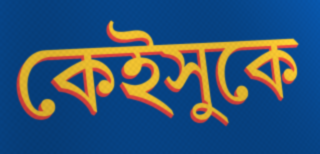
কেইসুকে